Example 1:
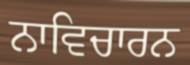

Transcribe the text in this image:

ਨਾਵਿਚਾਰਨ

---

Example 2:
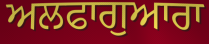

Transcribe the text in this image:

ਅਲਫਾਗੁਆਰਾ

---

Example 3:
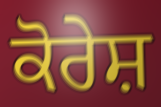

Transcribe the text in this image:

ਕੋਰੇਸ਼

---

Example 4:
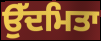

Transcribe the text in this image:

ਉੱਦਮਿਤਾ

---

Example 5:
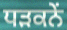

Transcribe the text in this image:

ਧੜਕਨੇਂ